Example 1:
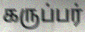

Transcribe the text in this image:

கருப்பர்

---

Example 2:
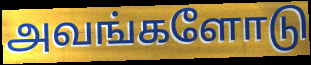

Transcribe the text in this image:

அவங்களோடு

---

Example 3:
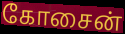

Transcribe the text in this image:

கோசைன்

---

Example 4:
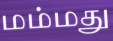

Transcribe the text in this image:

மம்மது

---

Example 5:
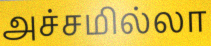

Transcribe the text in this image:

அச்சமில்லா